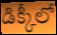
డిక్కీలో